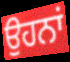
ਉਹਨਾਂ